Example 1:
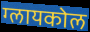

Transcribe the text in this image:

ग्लायकोल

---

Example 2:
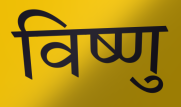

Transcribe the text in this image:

विष्णु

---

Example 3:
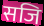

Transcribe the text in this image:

सजि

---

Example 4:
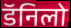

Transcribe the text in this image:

डॅनिलो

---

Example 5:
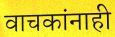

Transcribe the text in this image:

वाचकांनाही